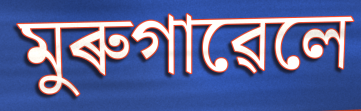
মুৰুগাৱেলে